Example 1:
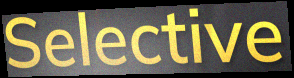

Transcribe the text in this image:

Selective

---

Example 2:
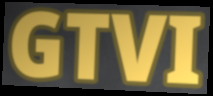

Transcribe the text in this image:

GTVI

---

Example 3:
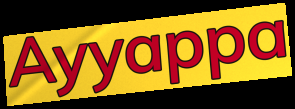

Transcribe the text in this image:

Ayyappa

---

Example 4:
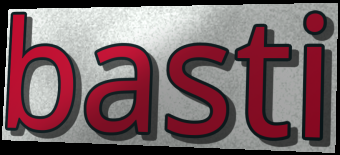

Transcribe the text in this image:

basti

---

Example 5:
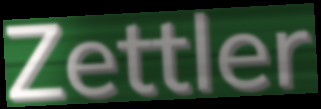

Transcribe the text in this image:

Zettler